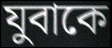
যুবাকে